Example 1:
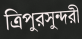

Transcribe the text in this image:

ত্রিপুরসুন্দরী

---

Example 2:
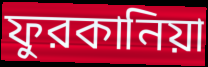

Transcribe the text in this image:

ফুরকানিয়া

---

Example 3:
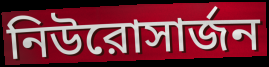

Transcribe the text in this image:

নিউরোসার্জন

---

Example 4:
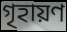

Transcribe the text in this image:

গৃহায়ণ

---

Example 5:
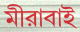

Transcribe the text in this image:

মীরাবাই